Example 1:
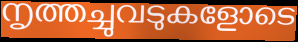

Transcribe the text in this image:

നൃത്തച്ചുവടുകളോടെ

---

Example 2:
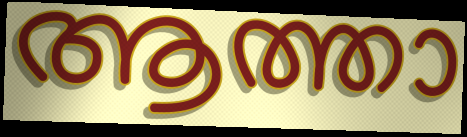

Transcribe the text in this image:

ആത്താ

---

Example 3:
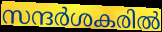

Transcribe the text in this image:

സന്ദർശകരിൽ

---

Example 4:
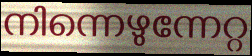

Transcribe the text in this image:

നിന്നെഴുന്നേറ്റ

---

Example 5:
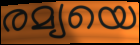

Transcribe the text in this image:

രമ്യയെ